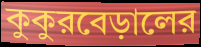
কুকুরবেড়ালের